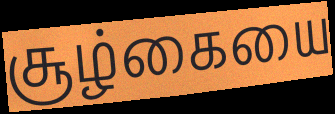
சூழ்கையை